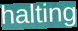
halting